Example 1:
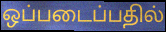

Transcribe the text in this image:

ஒப்படைப்பதில்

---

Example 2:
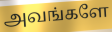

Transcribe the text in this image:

அவங்களே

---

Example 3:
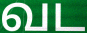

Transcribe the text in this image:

வட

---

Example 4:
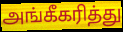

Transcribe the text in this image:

அங்கீகரித்து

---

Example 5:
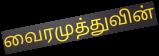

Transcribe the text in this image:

வைரமுத்துவின்